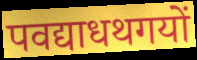
पवद्याधथगयों